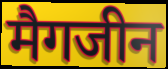
मैगजीन